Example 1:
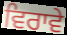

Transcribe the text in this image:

ਵਿਰਾਵੇ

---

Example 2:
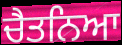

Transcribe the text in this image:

ਚੈਤਨਿਆ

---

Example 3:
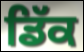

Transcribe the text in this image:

ਡਿੱਕ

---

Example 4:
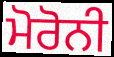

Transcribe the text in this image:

ਮੋਰੋਨੀ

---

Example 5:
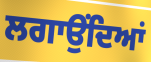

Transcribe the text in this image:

ਲਗਾਉੰਦਿਆਂ